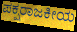
ಪಕ್ಷರಾಜಕೀಯ